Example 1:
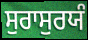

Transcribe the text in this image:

ਸੁਰਾਸੁਰਯੰ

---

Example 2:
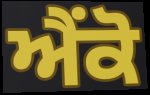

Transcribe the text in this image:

ਐਂਕੋ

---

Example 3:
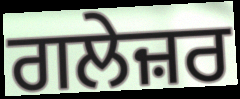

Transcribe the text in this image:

ਗਲੇਜ਼ਰ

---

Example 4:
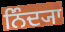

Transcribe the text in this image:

ਨਿੰਦ੍ਯਾ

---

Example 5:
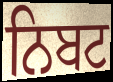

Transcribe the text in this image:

ਨਿਬਟ